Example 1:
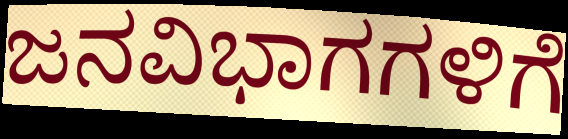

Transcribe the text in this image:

ಜನವಿಭಾಗಗಳಿಗೆ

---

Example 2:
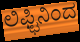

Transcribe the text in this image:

ಲಿಫ್ಟಿನಿಂದ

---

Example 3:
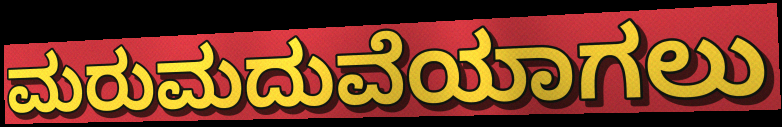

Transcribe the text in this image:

ಮರುಮದುವೆಯಾಗಲು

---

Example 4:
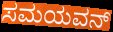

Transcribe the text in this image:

ಸಮಯವನ್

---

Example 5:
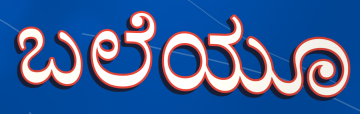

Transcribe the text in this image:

ಬಲೆಯೂ